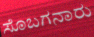
ಸೊಬಗನಾರು